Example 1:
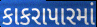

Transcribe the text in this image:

કાકરાપારમાં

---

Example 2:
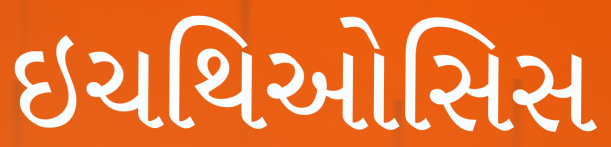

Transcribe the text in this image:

ઇચથિઓસિસ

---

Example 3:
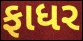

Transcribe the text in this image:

ફાધર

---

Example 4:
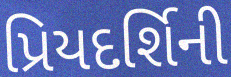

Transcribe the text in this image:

પ્રિયદર્શિની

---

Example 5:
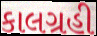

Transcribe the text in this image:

કાલગ્રહી